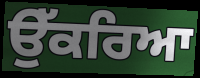
ਉੱਕਰਿਆ